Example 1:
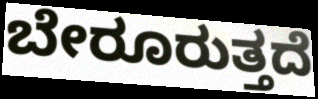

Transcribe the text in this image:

ಬೇರೂರುತ್ತದೆ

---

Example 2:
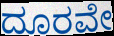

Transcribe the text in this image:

ದೂರವೇ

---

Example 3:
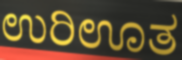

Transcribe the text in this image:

ಉರಿಊತ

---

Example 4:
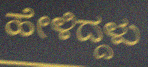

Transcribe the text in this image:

ಹೇಳಿದ್ದಳು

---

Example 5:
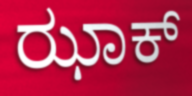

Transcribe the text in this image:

ಝಾಕ್